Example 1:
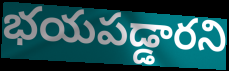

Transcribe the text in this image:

భయపడ్డారని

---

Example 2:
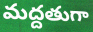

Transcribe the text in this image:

మద్దతుగా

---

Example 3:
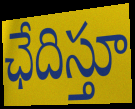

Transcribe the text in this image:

ఛేదిస్తూ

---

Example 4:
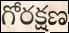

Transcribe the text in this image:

గోరక్షణ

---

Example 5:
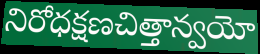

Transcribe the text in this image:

నిరోధక్షణచిత్తాన్వయో